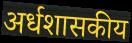
अर्धशासकीय